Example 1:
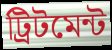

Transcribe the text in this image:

ট্রিটমেন্ট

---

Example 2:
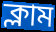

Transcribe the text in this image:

ক্লাম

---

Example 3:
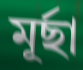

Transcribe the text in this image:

মূর্ছা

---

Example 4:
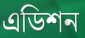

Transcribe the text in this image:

এডিশন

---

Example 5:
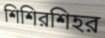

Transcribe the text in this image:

শিশিরশিহর